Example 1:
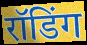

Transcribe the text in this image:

रॉडिंग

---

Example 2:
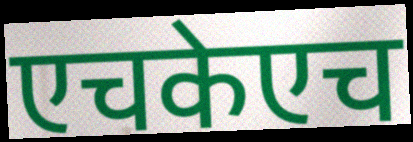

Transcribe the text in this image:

एचकेएच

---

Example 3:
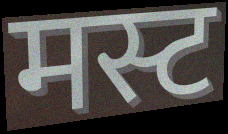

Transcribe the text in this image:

मस्‍ट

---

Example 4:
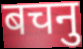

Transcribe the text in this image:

बचनु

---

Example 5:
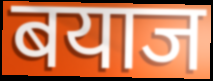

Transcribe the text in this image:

बयाज